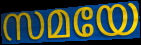
സമയേ